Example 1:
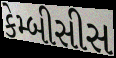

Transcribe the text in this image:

કેમ્બીસીસ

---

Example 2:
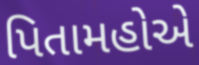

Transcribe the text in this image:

પિતામહોએ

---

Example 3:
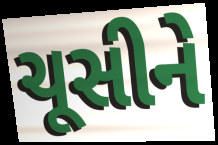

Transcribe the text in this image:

ચૂસીને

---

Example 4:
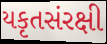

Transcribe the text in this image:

યકૃતસંરક્ષી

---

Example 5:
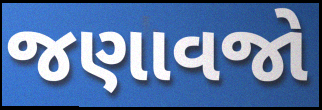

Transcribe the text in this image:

જણાવજો